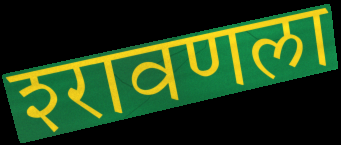
श्रावणला